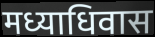
मध्याधिवास